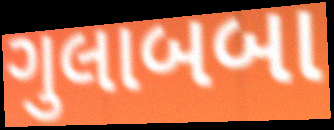
ગુલાબબા